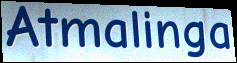
Atmalinga